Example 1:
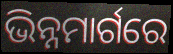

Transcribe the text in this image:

ଭିନ୍ନମାର୍ଗରେ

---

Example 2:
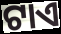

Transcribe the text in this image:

ଟାଏ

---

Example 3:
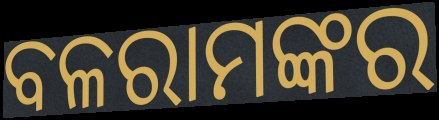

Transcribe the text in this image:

ବଳରାମଙ୍କର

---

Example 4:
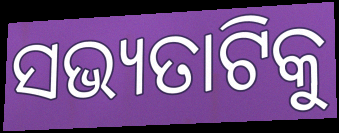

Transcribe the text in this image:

ସଭ୍ୟତାଟିକୁ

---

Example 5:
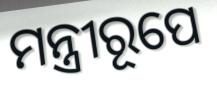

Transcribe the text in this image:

ମନ୍ତ୍ରୀରୂପେ